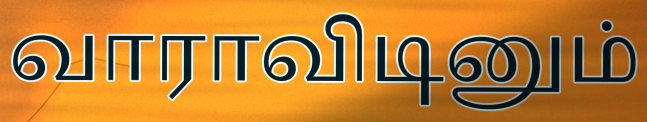
வாராவிடினும்